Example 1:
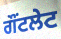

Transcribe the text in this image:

ਗੌਂਟਲੇਟ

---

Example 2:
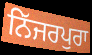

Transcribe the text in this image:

ਨਿੱਜਰਪੁਰਾ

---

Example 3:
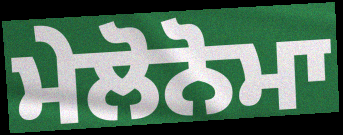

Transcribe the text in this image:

ਮੇਲੋਨੋਮਾ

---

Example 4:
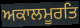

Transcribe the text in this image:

ਅਕਾਲਮੂਰਤਿ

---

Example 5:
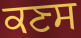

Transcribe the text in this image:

ਕਣਸ